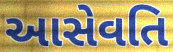
આસેવતિ